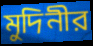
মুদিনীর